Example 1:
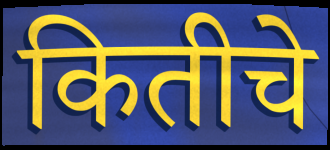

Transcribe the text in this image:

कितीचे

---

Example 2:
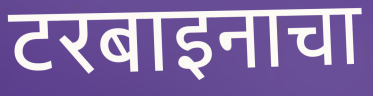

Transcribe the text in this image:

टरबाइनाचा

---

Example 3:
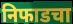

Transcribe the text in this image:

निफाडचा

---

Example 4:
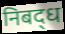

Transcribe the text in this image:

निबद्ध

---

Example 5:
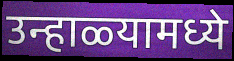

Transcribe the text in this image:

उन्हाळ्यामध्ये